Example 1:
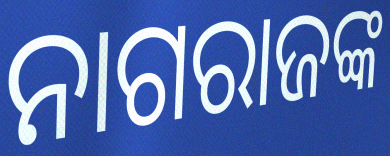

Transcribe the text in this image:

ନାଗରାଜଙ୍କ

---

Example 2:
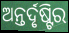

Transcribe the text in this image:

ଅନ୍ତର୍ଦୃଷ୍ଟିର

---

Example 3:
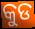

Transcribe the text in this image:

କୁଡ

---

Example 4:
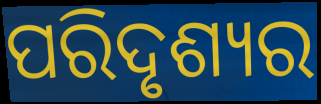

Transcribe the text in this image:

ପରିଦୃଶ୍ୟର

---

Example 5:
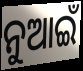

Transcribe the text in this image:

ନୁଆଇଁ